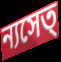
ন্যসেত্